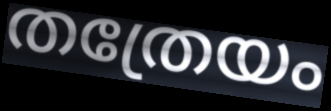
തത്രേയം